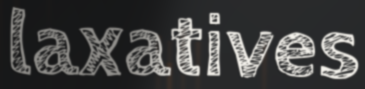
laxatives